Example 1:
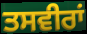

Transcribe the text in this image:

ਤਸਵੀਰਾਂ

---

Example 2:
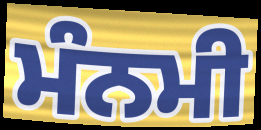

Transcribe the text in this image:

ਮੰਨਮੀ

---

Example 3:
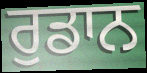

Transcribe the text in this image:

ਰੁਡਾਨ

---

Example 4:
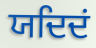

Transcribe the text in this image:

ਯਦਿਦਂ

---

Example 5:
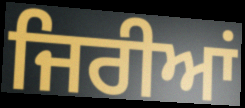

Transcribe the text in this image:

ਜਿਰੀਆਂ